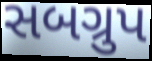
સબગ્રુપ